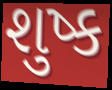
શુષ્ક